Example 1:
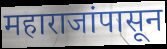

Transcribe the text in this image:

महाराजांपासून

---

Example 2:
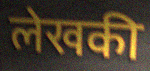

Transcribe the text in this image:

लेखकी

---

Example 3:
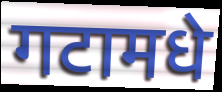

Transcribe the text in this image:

गटामधे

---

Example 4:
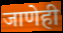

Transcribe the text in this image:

जाणेही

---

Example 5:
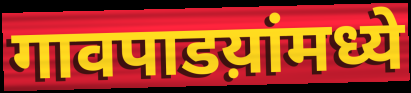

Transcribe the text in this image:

गावपाडय़ांमध्ये